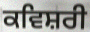
ਕਵਿਸ਼ਰੀ